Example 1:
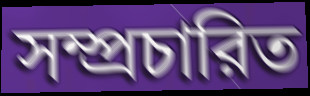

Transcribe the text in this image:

সম্প্রচারিত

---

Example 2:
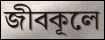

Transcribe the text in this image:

জীবকূলে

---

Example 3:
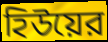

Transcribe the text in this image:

হিউয়ের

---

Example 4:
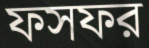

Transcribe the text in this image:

ফসফর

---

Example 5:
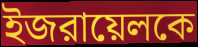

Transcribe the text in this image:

ইজরায়েলকে